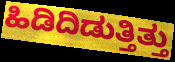
ಹಿಡಿದಿಡುತ್ತಿತ್ತು